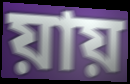
য়ায়